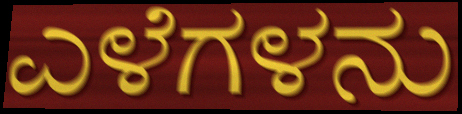
ಎಳೆಗಳನು